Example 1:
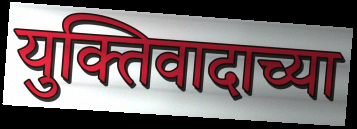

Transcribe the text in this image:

युक्तिवादाच्या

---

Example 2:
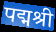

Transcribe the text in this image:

पद्मश्री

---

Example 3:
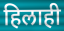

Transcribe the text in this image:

हिलाही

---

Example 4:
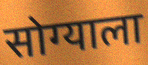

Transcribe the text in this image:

सोग्याला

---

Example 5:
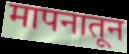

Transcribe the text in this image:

मापनातून